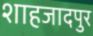
शाहजादपुर